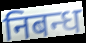
निबन्ध